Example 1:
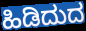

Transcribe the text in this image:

ಹಿಡಿದುದ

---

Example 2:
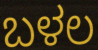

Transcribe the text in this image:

ಬಳಲ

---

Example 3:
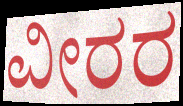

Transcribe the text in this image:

ವೀರರ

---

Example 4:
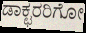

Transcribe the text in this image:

ಡಾಕ್ಟರರಿಗೋ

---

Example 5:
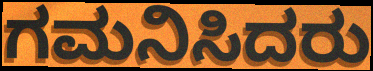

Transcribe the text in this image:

ಗಮನಿಸಿದರು